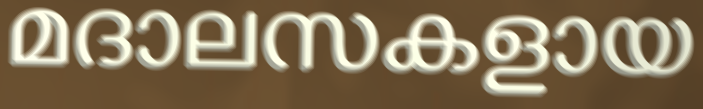
മദാലസകളായ